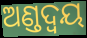
ଅଣ୍ଡଦ୍ୱୟ